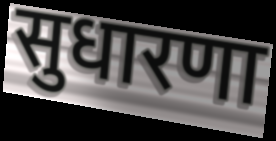
सुधारणा